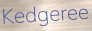
Kedgeree